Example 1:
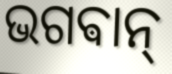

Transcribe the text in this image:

ଭଗଵାନ୍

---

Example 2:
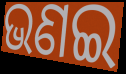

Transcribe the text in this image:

ଭଣଇ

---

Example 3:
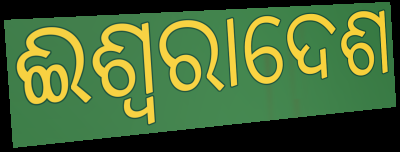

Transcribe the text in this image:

ଈଶ୍ୱରାଦେଶ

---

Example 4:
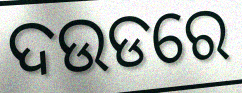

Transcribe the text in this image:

ଦଉଡରେ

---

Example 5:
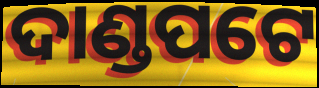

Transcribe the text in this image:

ଦାଣ୍ଡପଟେ